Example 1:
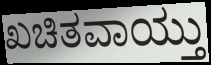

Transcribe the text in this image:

ಖಚಿತವಾಯ್ತು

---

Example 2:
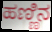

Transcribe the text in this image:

ಹಣ್ಣಿನ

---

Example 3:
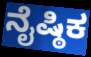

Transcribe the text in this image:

ನೈಷ್ಠಿಕ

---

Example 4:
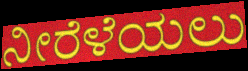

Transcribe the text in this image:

ನೀರೆಳೆಯಲು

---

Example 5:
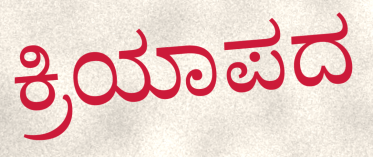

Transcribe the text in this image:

ಕ್ರಿಯಾಪದ